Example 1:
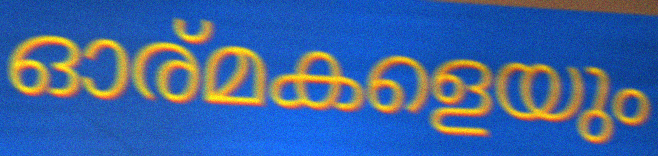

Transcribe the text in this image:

ഓര്മകളെയും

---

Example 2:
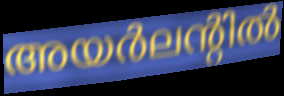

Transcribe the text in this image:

അയർലന്റിൽ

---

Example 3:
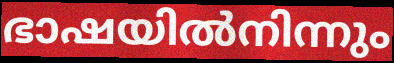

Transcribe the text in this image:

ഭാഷയിൽനിന്നും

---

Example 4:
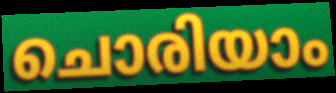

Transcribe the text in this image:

ചൊരിയാം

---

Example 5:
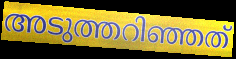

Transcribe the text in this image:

അടുത്തറിഞ്ഞത്